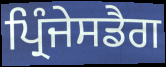
ਪ੍ਰਿੰਜੇਸਡੈਗ